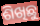
ଶିଖିଛୁ